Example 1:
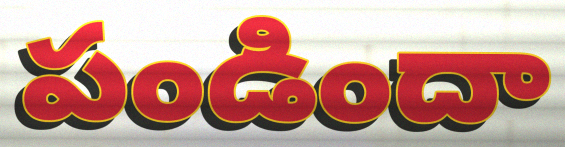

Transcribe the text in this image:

పండిందా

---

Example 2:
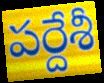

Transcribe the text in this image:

పర్దేశీ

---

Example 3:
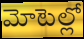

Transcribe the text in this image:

మోటెల్లో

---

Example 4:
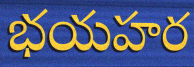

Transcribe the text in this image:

భయహర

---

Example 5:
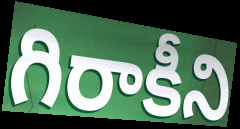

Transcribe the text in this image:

గిరాకీని